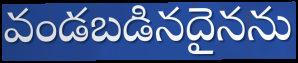
వండబడినదైనను